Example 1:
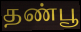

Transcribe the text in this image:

தண்பூ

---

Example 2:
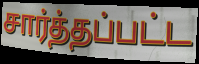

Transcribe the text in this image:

சார்த்தப்பட்ட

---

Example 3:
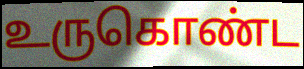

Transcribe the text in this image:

உருகொண்ட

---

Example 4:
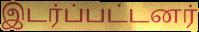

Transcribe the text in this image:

இடர்ப்பட்டனர்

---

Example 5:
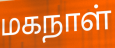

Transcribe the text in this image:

மகநாள்